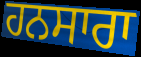
ਹਨਸਾਰਾ